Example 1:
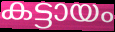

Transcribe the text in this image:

കട്ടായം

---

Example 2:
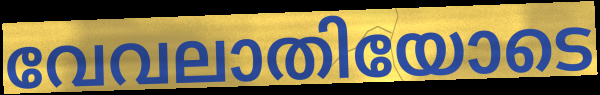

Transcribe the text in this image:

വേവലാതിയോടെ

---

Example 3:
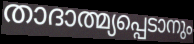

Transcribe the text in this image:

താദാത്മ്യപ്പെടാനും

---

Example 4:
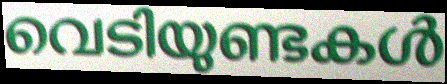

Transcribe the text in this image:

വെടിയുണ്ടകൾ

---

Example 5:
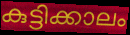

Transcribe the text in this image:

കുട്ടിക്കാലം